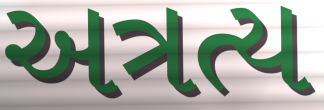
અત્રત્ય